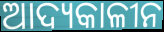
ଆଦ୍ୟକାଳୀନ